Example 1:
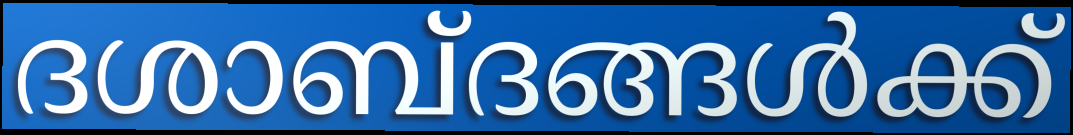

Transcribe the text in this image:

ദശാബ്ദങ്ങൾക്ക്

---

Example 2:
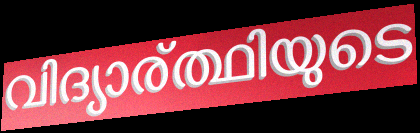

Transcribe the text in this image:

വിദ്യാര്ത്ഥിയുടെ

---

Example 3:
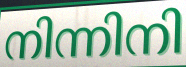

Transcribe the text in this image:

നിന്നിനി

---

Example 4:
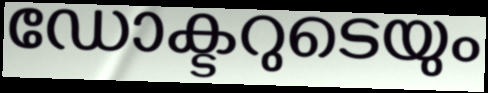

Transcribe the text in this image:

ഡോക്ടറുടെയും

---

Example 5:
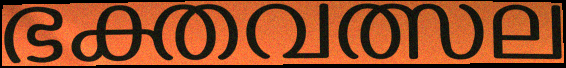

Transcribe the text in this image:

ഭക്തവത്സല